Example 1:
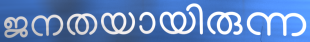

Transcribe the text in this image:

ജനതയായിരുന്ന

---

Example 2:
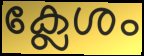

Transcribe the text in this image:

ക്ലേശം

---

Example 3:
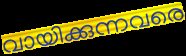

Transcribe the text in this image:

വായിക്കുന്നവരെ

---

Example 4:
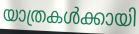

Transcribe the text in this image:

യാത്രകൾക്കായി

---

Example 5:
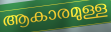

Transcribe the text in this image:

ആകാരമുള്ള